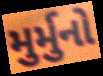
મુર્મુનો